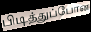
பிடித்துப்போன